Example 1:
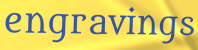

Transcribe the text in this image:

engravings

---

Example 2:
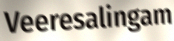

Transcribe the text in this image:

Veeresalingam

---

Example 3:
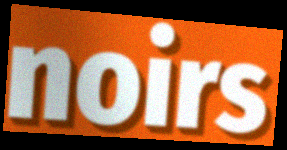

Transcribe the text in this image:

noirs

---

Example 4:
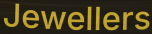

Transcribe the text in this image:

Jewellers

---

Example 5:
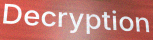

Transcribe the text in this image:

Decryption